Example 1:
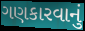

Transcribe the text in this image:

ગણકારવાનું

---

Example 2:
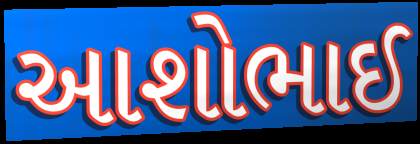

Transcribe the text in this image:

આશોભાઈ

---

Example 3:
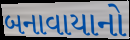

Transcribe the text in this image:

બનાવાયાનો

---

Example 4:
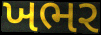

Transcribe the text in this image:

ખભર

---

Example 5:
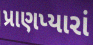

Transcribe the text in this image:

પ્રાણપ્યારાં